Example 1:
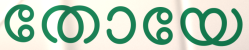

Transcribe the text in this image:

തോയേ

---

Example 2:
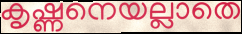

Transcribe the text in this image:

കൃഷ്ണനെയല്ലാതെ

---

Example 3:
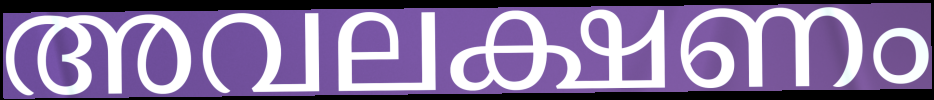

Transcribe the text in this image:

അവലക്ഷണം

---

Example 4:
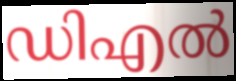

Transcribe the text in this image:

ഡിഎൽ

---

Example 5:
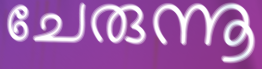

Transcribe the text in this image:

ചേരുന്നൂ